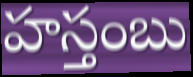
హస్తంబు